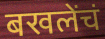
बखलेंचं